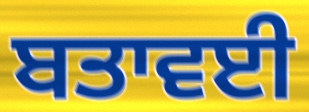
ਬਤਾਵਈ